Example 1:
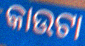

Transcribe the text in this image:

କାଉଟା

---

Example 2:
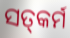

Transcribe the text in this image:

ସତ୍‍କର୍ମ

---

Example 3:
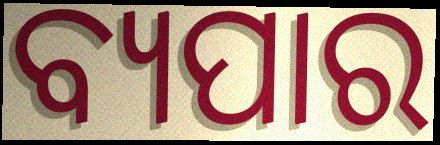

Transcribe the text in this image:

ବ୍ୟପାର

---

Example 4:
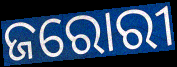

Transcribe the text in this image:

ଜରୋରୀ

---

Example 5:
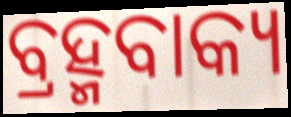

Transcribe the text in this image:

ବ୍ରହ୍ମବାକ୍ୟ